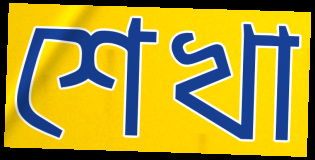
শেখা